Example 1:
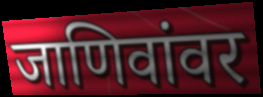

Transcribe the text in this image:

जाणिवांवर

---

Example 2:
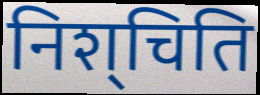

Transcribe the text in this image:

निश्चिति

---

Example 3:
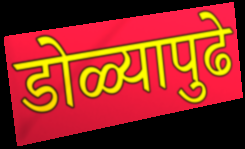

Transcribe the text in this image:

डोळ्यापुढे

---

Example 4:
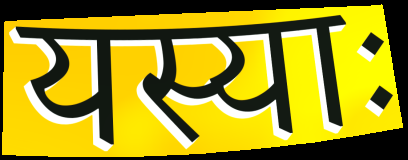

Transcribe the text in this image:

यस्याः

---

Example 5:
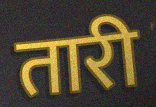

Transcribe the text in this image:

तारी